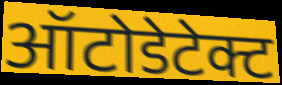
ऑटोडेटेक्ट